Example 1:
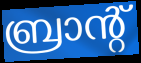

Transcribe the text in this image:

ബ്രാന്റ്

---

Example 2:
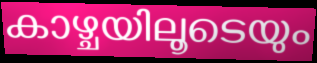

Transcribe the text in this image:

കാഴ്ചയിലൂടെയും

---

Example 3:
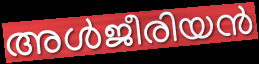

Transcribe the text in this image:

അൾജീരിയൻ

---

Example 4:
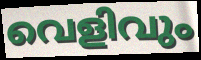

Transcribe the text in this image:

വെളിവും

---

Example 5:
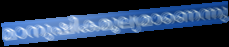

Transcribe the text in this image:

മാനുഷികമൂല്യമാണെന്നു